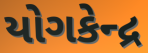
યોગકેન્દ્ર